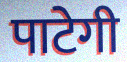
पाटेगी